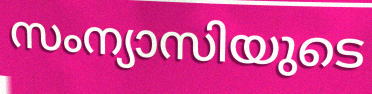
സംന്യാസിയുടെ